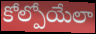
కోల్పోయేలా